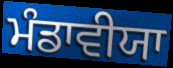
ਮੰਡਾਵੀਯਾ